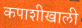
कपाशीखाली